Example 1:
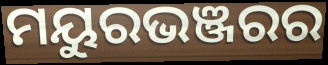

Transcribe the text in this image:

ମୟୁରଭଞ୍ଜରର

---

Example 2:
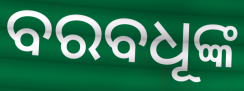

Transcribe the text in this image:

ବରବଧୂଙ୍କ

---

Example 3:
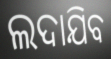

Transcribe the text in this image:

ଲଦାଯିବ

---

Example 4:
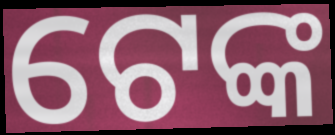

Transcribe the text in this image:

ଟେଙ୍କ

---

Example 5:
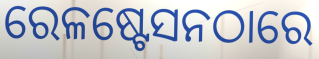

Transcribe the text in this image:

ରେଳଷ୍ଟେସନଠାରେ